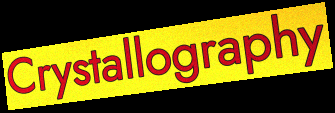
Crystallography